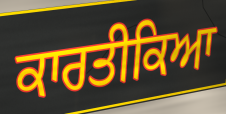
ਕਾਰਤੀਕਿਆ